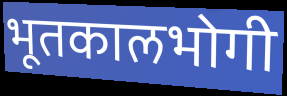
भूतकालभोगी